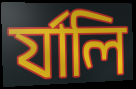
র্যালি